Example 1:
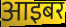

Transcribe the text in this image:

आइबर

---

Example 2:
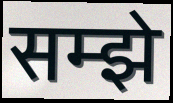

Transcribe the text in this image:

सम्झे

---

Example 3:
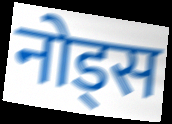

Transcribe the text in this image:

नोड्स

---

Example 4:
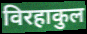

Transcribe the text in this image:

विरहाकुल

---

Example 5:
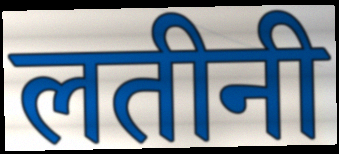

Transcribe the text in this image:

लतीनी